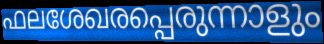
ഫലശേഖരപ്പെരുന്നാളും